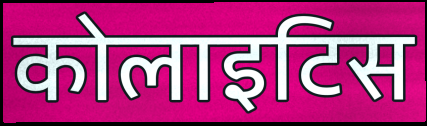
कोलाइटिस